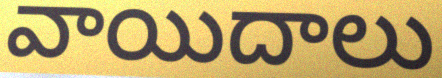
వాయిదాలు